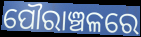
ପୌରାଞ୍ଚଳରେ